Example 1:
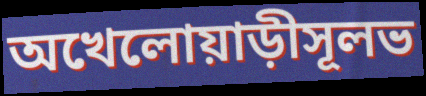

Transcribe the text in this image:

অখেলোয়াড়ীসূলভ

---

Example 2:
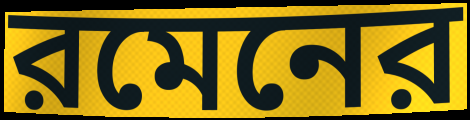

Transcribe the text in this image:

রমেনের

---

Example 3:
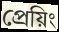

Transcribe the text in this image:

প্রেয়িং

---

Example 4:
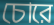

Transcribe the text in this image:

চোরে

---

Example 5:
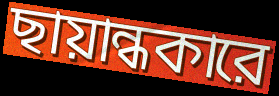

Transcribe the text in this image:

ছায়ান্ধকারে